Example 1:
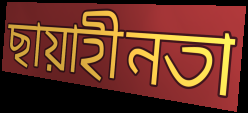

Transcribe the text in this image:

ছায়াহীনতা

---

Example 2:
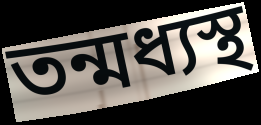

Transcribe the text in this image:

তন্মধ্যস্থ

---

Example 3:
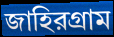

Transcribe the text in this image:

জাহিরগ্রাম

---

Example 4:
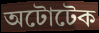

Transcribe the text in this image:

অটোটেক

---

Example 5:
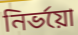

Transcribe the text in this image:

নির্ভয়ো